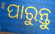
ପାରୁନ୍ତୁ